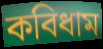
কবিধাম